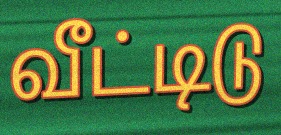
வீட்டிடு